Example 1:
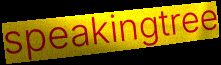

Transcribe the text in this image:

speakingtree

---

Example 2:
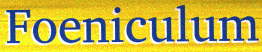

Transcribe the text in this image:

Foeniculum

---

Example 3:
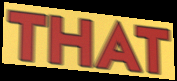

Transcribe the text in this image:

THAT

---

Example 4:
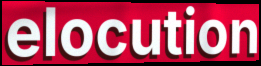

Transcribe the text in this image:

elocution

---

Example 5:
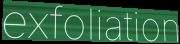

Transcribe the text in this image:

exfoliation